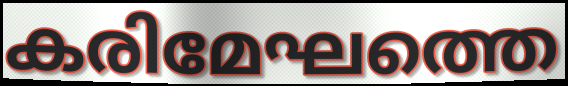
കരിമേഘത്തെ